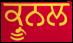
ਕ੍ਰੂਨਲ